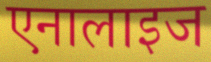
एनालाइज